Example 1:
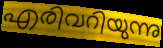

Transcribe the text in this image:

എരിവറിയുന്നു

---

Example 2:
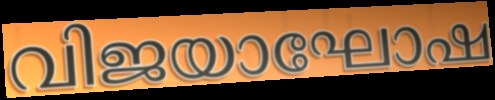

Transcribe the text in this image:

വിജയാഘോഷ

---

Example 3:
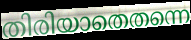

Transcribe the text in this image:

തിരിയാതെതന്നെ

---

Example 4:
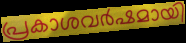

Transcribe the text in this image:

പ്രകാശവർഷമായി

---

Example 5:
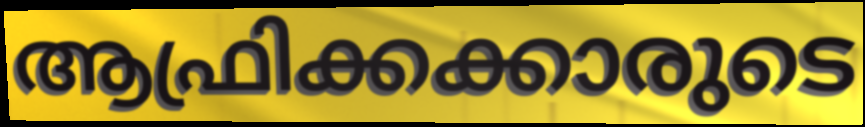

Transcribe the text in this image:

ആഫ്രിക്കക്കാരുടെ